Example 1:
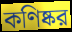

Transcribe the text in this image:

কণিষ্কর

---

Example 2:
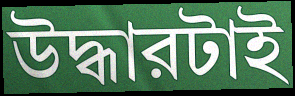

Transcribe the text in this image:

উদ্ধারটাই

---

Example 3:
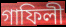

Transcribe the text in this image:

গাফিলী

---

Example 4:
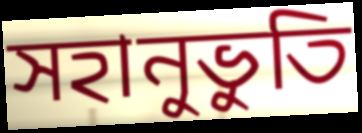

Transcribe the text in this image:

সহানুভুতি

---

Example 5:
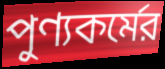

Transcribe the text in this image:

পুণ্যকর্মের